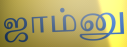
ஜாம்னு